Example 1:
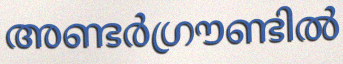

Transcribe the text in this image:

അണ്ടർഗ്രൗണ്ടിൽ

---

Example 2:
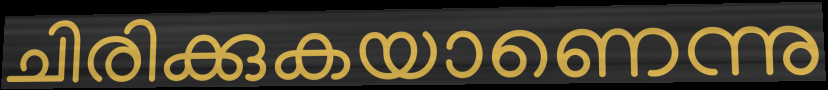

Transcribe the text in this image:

ചിരിക്കുകയാണെന്നു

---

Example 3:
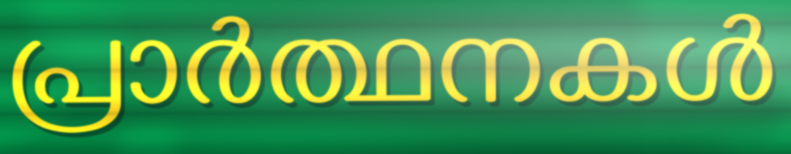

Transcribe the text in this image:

പ്രാർത്ഥനകൾ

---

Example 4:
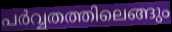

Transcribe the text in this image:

പർവ്വതത്തിലെങ്ങും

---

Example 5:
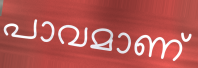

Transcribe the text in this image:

പാവമാണ്